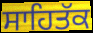
ਸਾਹਿਤੱਕ